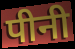
पीनी